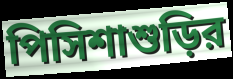
পিসিশাশুড়ির